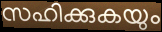
സഹിക്കുകയും